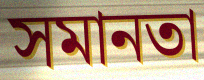
সমানতা